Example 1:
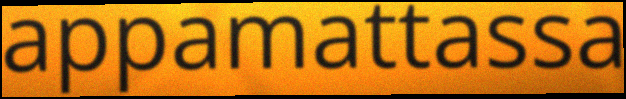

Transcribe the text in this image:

appamattassa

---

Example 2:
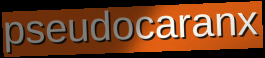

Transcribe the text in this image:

pseudocaranx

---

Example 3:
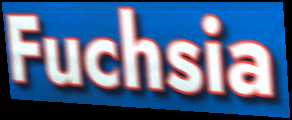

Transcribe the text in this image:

Fuchsia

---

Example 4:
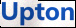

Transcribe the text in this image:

Upton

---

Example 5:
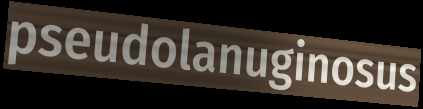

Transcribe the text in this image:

pseudolanuginosus